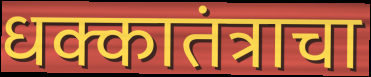
धक्कातंत्राचा